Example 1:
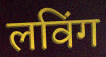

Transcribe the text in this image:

लविंग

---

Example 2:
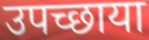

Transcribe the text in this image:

उपच्छाया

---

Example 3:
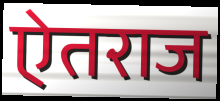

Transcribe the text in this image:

ऐतराज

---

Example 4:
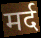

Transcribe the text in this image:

मर्द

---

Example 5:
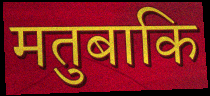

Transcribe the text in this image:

मतुबाकि